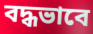
বদ্ধভাবে